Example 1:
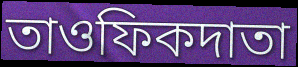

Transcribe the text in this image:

তাওফিকদাতা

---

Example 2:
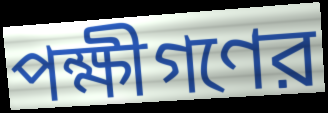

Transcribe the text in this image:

পক্ষীগণের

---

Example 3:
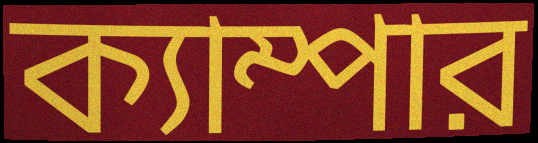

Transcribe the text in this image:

ক্যাম্পার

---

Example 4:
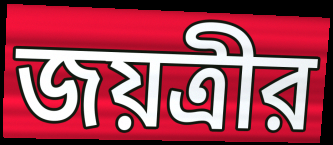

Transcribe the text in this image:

জয়ত্রীর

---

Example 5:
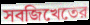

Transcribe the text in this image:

সবজিখেতের